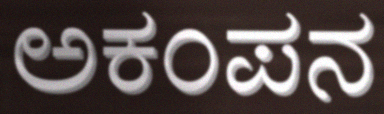
ಅಕಂಪನ